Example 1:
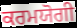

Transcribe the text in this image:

ਕਰਮਯੋਗੀ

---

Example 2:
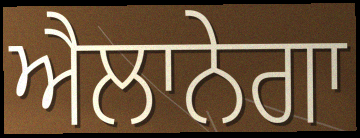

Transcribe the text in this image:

ਐਲਾਨੇਗਾ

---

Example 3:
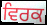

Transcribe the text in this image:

ਵਿਰਕ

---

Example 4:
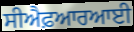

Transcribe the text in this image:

ਸੀਐਫ਼ਆਰਆਈ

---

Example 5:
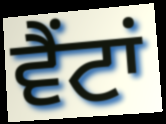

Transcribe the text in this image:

ਵੈਂਟਾਂ